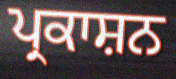
ਪ੍ਰਕਾਸ਼ਨ